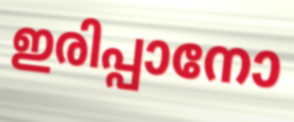
ഇരിപ്പാനോ